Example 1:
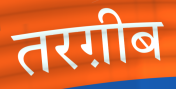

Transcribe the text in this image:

तरग़ीब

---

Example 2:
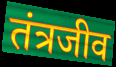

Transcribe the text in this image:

तंत्रजीव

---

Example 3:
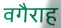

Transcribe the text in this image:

वगैराह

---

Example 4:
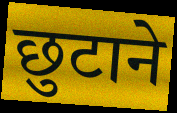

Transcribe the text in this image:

छुटाने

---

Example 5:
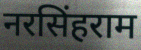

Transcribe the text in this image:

नरसिंहराम